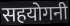
सहयोगनी